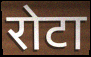
रोटा